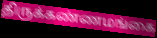
திருக்கண்ணமங்கை